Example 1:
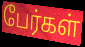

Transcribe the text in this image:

பேர்கள்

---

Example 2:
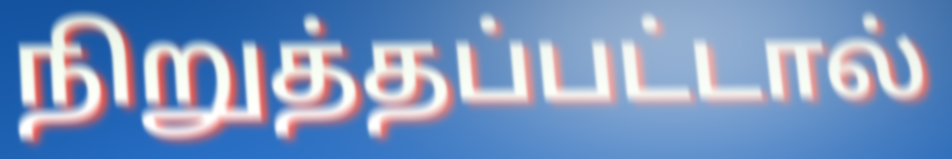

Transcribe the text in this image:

நிறுத்தப்பட்டால்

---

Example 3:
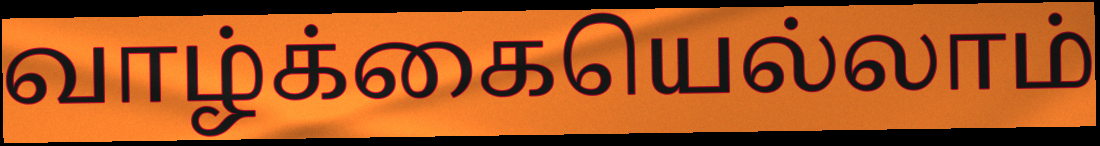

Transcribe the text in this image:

வாழ்க்கையெல்லாம்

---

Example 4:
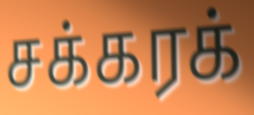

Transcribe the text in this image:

சக்கரக்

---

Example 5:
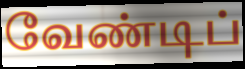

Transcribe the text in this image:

வேண்டிப்